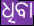
ଧିବା